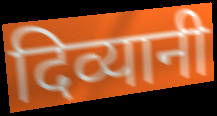
दिव्यानी